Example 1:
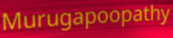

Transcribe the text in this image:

Murugapoopathy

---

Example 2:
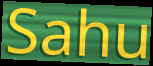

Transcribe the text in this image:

Sahu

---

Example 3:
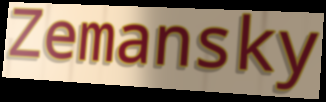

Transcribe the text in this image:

Zemansky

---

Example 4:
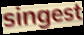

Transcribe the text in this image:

singest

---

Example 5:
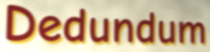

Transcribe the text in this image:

Dedundum